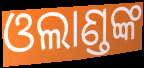
ଓଲାଣ୍ଡଙ୍କ